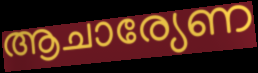
ആചാര്യേണ